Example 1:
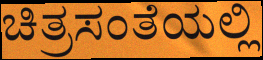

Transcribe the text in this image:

ಚಿತ್ರಸಂತೆಯಲ್ಲಿ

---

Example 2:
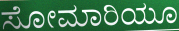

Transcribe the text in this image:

ಸೋಮಾರಿಯೂ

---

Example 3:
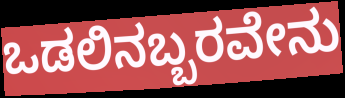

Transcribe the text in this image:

ಒಡಲಿನಬ್ಬರವೇನು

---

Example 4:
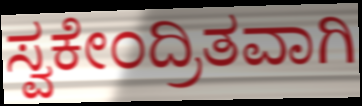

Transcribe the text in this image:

ಸ್ವಕೇಂದ್ರಿತವಾಗಿ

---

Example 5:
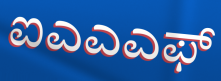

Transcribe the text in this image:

ಐಎಎಎಫ್